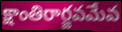
క్షాంతిరార్జవమేవ